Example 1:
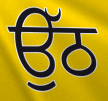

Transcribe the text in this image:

ਉੱਠ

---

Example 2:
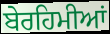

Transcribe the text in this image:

ਬੇਰਹਿਮੀਆਂ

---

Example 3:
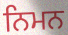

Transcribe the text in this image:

ਨਿਮਨ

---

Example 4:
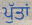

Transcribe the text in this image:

ਪੁੱਤਾਂ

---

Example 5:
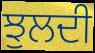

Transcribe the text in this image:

ਝੁਲਦੀ